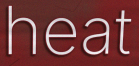
heat